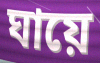
ঘায়ে